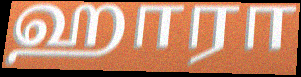
ஹாரா